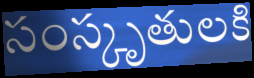
సంస్కృతులకి